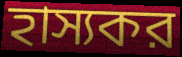
হাস্যকর